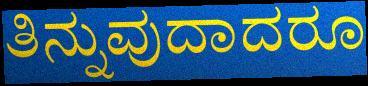
ತಿನ್ನುವುದಾದರೂ